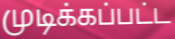
முடிக்கப்பட்ட